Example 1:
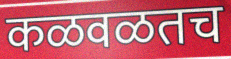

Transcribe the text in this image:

कळवळतच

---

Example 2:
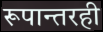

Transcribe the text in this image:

रूपान्तरही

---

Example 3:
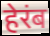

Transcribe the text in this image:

हेरंब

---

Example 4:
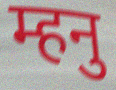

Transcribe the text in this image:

म्हनु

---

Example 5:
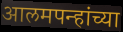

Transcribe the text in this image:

आलमपन्हांच्या